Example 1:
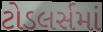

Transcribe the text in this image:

ટોડલર્સમાં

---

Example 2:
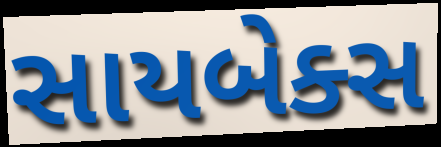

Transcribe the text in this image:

સાયબેક્સ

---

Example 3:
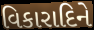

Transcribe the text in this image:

વિકારાદિને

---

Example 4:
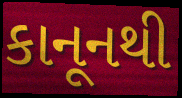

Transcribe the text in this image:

કાનૂનથી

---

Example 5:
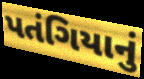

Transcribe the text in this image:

પતંગિયાનું